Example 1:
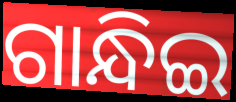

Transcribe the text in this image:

ଗାନ୍ଧିଇ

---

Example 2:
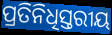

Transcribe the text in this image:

ପ୍ରତିନିଧିସ୍ତରୀୟ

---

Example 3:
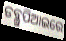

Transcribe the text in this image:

ଡବ୍ଲୁପିଆଇରେ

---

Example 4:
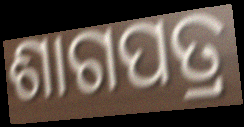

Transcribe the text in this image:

ଶାଗପତ୍ର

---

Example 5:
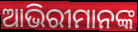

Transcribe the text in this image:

ଆଭିରୀମାନଙ୍କ